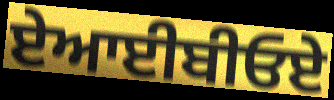
ਏਆਈਬੀਓਏ